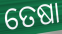
ତେଷା